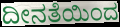
ದೀನತೆಯಿಂದ